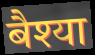
बैश्या